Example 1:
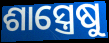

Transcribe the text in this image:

ଶାସ୍ତ୍ରେଷୁ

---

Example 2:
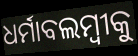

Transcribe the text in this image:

ଧର୍ମାବଲମ୍ବୀକୁ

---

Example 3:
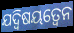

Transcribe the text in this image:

ଯଦ୍ଵିଷୟତ୍ଵେନ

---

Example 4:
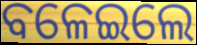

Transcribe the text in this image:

ବଳେଇଲେ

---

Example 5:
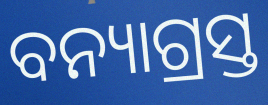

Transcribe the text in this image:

ବନ୍ୟାଗ୍ରସ୍ତ